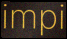
impi